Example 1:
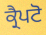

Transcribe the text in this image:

ਕ੍ਰੈਪਟੋ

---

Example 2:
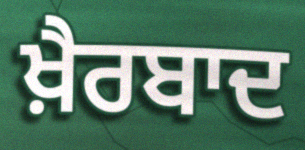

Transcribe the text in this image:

ਖ਼ੈਰਬਾਦ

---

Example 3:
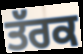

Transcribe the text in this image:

ਤੱਰਕ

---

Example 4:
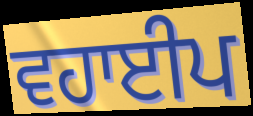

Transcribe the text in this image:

ਵਹਾਈਪ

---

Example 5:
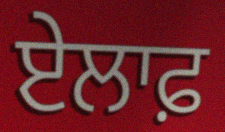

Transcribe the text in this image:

ਏਲਾਫ਼